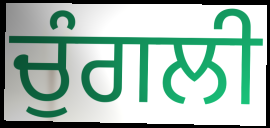
ਚੁੰਗਲੀ